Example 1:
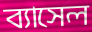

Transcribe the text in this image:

ব্যাসেল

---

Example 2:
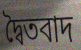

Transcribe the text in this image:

দ্বৈতবাদ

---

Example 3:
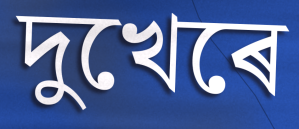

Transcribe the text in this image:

দুখেৰে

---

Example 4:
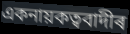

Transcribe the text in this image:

একনায়কত্ববাদীৰ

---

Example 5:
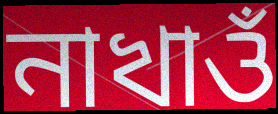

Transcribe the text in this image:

নাখাওঁ